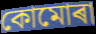
কোমোৰা